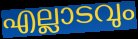
എല്ലാടവും